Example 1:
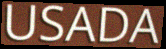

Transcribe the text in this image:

USADA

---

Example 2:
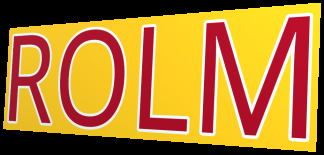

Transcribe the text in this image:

ROLM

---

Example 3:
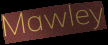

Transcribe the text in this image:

Mawley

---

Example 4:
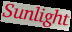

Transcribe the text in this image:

Sunlight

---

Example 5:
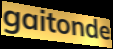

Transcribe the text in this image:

gaitonde